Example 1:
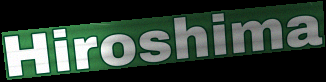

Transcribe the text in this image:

Hiroshima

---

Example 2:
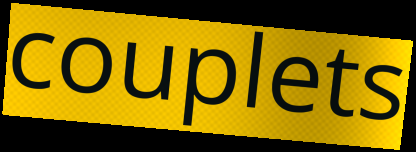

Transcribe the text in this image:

couplets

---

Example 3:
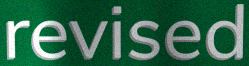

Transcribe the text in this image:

revised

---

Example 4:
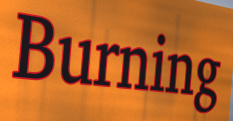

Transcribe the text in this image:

Burning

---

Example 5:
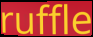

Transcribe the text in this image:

ruffle